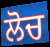
ਲੋਚ